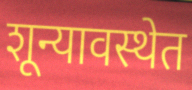
शून्यावस्थेत